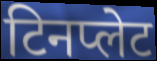
टिनप्लेट